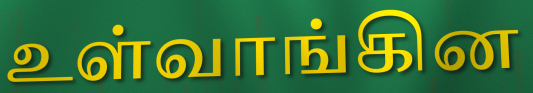
உள்வாங்கின